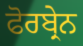
ਫੋਰਬ੍ਰੇਨ